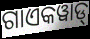
ଗାଏକୱାଡ୍